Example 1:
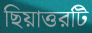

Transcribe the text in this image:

ছিয়াত্তরটি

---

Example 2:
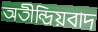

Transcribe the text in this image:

অতীন্দ্রিয়বাদ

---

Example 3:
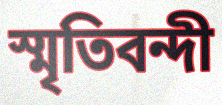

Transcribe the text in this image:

স্মৃতিবন্দী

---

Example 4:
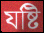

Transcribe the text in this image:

যষ্টি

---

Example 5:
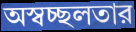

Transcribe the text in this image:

অস্বচ্ছলতার